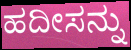
ಹದೀಸನ್ನು